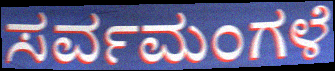
ಸರ್ವಮಂಗಳೆ